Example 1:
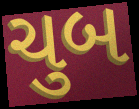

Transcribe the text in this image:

ચુબ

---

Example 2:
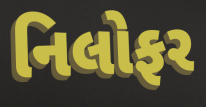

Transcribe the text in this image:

નિલોફર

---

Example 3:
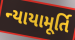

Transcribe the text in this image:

ન્યાયામૂર્તિ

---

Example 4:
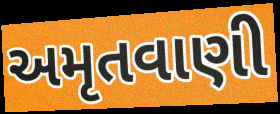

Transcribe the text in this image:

અમૃતવાણી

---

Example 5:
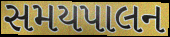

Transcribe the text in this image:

સમયપાલન